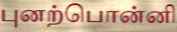
புனற்பொன்னி